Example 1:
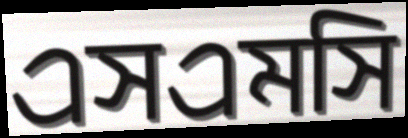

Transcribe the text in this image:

এসএমসি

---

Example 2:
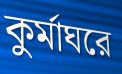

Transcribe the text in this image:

কুর্মাঘরে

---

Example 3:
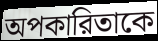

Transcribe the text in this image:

অপকারিতাকে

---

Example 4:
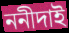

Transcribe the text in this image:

ননীদাই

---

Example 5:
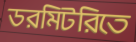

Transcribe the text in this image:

ডরমিটরিতে